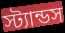
স্ট্যান্ডস